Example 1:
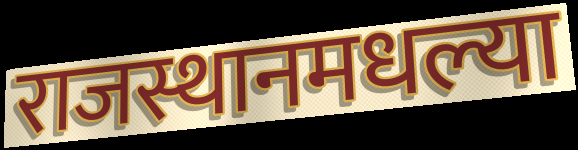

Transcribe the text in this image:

राजस्थानमधल्या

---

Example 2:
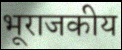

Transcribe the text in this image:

भूराजकीय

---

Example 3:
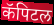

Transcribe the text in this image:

कॅपिटल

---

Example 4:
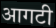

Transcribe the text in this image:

आगटी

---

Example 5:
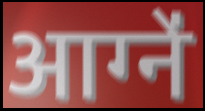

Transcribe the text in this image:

आग्ने॑